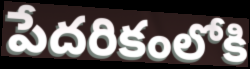
పేదరికంలోకి